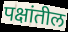
पक्षांतील